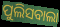
ପୁଲିସବାଲା